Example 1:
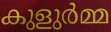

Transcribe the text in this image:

കുളുർമ്മ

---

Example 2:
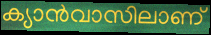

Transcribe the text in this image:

ക്യാൻവാസിലാണ്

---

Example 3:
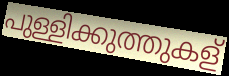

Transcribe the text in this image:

പുള്ളിക്കുത്തുകള്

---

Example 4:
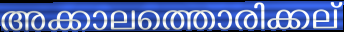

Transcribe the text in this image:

അക്കാലത്തൊരിക്കല്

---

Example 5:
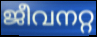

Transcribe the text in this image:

ജീവനറ്റ